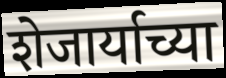
शेजार्याच्या